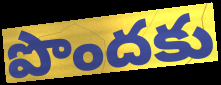
పొందకు